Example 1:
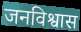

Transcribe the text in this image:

जनविश्वास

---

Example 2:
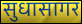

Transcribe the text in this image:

सुधासागर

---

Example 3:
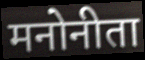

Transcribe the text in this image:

मनोनीता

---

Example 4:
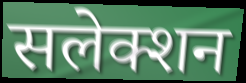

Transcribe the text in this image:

सलेक्शन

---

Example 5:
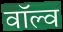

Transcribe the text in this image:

वॉल्व